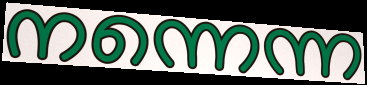
നന്നെന്ന